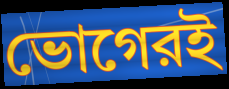
ভোগেরই